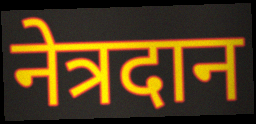
नेत्रदान